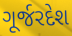
ગૂર્જરદેશ